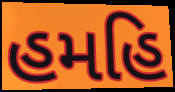
હમહિ